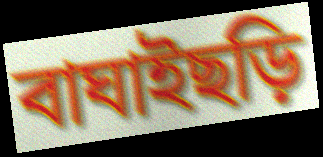
বাঘাইছড়ি